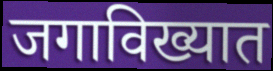
जगाविख्यात